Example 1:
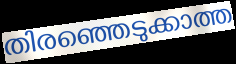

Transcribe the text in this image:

തിരഞ്ഞെടുക്കാത്ത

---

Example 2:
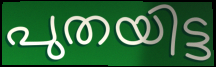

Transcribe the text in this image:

പുതയിട്ട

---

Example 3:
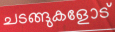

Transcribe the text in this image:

ചടങ്ങുകളോട്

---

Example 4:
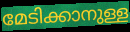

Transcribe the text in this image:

മേടിക്കാനുള്ള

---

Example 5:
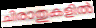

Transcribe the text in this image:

ചിരാതുകളിൽ